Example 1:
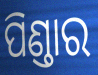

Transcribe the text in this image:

ପିଣ୍ଡାର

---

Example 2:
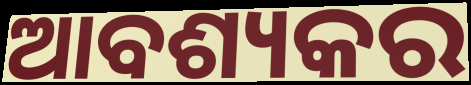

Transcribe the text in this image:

ଆବଶ୍ୟକର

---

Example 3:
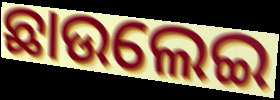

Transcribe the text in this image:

ଛାଉଲେଇ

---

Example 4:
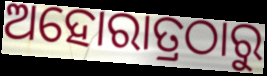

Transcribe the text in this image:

ଅହୋରାତ୍ରଠାରୁ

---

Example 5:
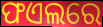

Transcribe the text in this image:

ଫଏଲରେ